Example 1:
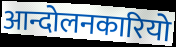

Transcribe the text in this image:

आन्दोलनकारियो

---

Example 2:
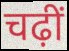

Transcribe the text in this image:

चढ़ीं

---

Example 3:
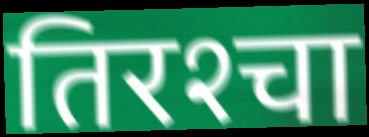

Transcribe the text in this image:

तिरश्चा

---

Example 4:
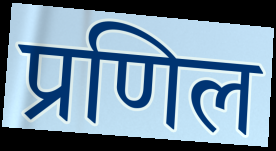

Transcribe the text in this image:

प्रणिल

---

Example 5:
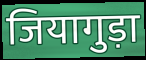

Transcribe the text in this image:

जियागुड़ा